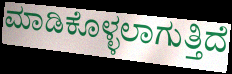
ಮಾಡಿಕೊಳ್ಳಲಾಗುತ್ತಿದೆ